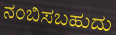
ನಂಬಿಸಬಹುದು